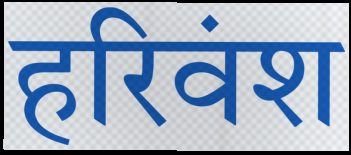
हरिवंश